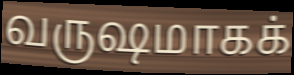
வருஷமாகக்